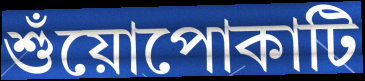
শুঁয়োপোকাটি